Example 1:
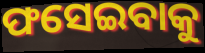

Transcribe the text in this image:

ଫସେଇବାକୁ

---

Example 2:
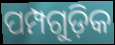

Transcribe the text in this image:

ପମ୍ପଗୁଡ଼ିକ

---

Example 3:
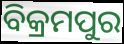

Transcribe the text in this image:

ବିକ୍ରମପୁର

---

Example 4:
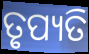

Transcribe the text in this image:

ତୃପ୍ୟତି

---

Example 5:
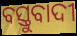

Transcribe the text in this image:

ବସ୍ତୁବାଦୀ